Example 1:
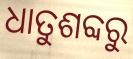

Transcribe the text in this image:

ଧାତୁଶବ୍ଦରୁ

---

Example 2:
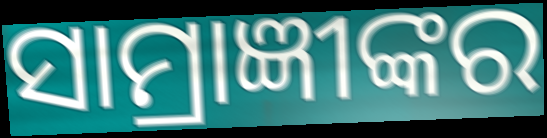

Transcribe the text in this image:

ସାମ୍ରାଜ୍ଞୀଙ୍କର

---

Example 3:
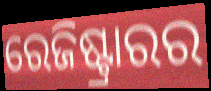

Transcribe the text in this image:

ରେଜିଷ୍ଟ୍ରାରର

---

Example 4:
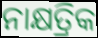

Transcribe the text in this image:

ନାକ୍ଷତ୍ରିକ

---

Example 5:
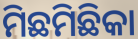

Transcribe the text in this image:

ମିଛମିଛିକା